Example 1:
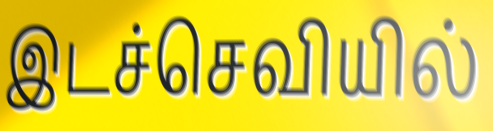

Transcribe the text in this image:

இடச்செவியில்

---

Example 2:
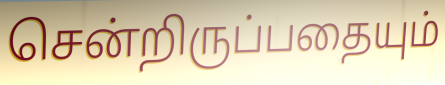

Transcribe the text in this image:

சென்றிருப்பதையும்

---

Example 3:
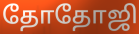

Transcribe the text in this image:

தோதோஜி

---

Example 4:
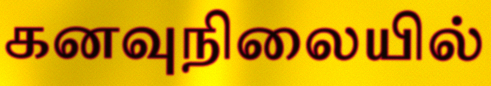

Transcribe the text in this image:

கனவுநிலையில்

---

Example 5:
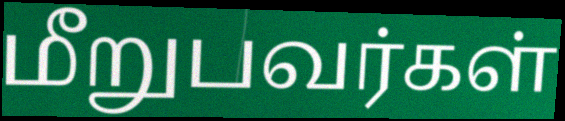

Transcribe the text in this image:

மீறுபவர்கள்